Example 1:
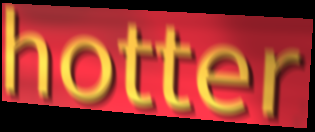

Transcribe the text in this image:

hotter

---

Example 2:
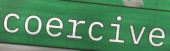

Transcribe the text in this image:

coercive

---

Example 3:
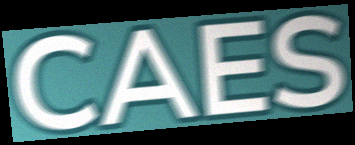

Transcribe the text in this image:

CAES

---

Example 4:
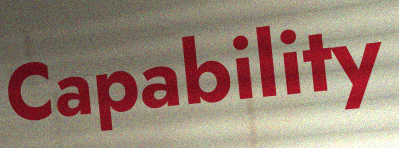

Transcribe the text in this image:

Capability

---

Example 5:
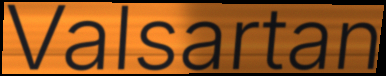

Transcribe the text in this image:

Valsartan